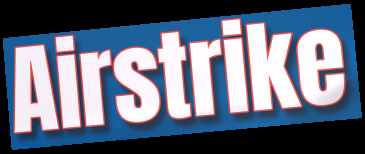
Airstrike